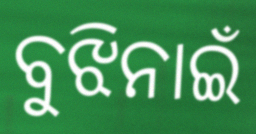
ବୁଝିନାଇଁ